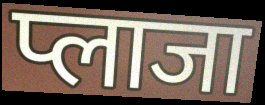
प्‍लाजा